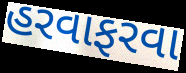
હરવાફરવા